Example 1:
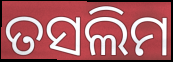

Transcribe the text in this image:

ତସଲିମ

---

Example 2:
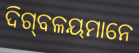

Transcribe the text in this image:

ଦିଗ୍‌ବଳୟମାନେ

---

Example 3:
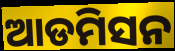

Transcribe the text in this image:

ଆଡମିସନ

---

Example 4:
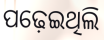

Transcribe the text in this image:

ପଢ଼େଇଥିଲି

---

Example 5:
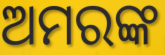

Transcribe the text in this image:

ଅମରଙ୍କ